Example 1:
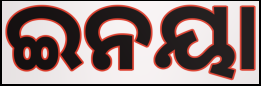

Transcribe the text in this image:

ଇନୟା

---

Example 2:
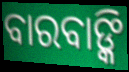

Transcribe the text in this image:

ବାରବାଙ୍କି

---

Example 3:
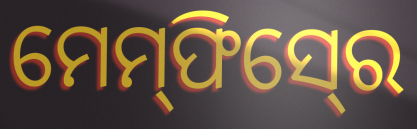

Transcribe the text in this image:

ମେମ୍‍ଫିସ୍‍ରେ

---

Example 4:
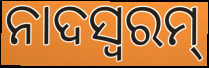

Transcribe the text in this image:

ନାଦସ୍ଵରମ୍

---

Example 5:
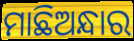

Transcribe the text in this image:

ମାଛିଅନ୍ଧାର